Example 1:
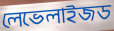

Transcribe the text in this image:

লেভেলাইজড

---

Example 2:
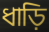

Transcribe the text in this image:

ধাড়ি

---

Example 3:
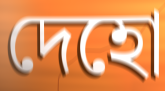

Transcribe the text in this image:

দেহো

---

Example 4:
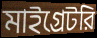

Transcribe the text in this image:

মাইগ্রেটরি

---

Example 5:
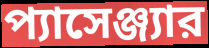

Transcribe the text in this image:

প্যাসেঞ্জ্যার